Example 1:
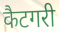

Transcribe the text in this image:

कैटगरी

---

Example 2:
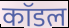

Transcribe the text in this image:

कॉडल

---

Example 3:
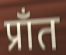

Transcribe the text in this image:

प्राँत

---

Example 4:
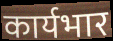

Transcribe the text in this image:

कार्यभार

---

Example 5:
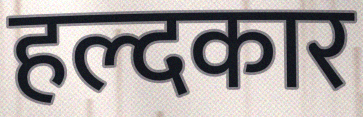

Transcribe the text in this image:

हल्दकार